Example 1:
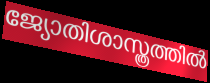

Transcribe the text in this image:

ജ്യോതിശാസ്ത്രത്തിൽ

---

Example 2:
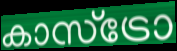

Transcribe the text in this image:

കാസ്ട്രോ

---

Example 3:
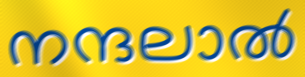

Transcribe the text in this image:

നന്ദലാൽ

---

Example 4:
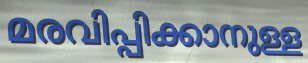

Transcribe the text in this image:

മരവിപ്പിക്കാനുള്ള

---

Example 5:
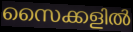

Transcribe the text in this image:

സൈക്കളിൽ